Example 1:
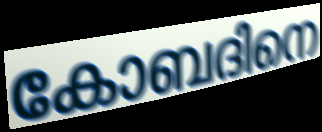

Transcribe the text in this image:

കോബദിനെ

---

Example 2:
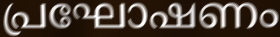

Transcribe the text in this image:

പ്രഘോഷണം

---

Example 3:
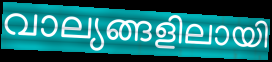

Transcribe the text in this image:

വാല്യങ്ങളിലായി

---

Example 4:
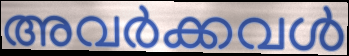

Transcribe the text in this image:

അവർക്കവൾ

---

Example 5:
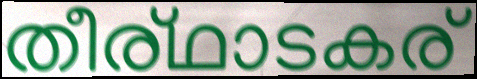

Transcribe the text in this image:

തീര്ഥാടകര്